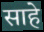
साहे